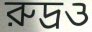
রুদ্রও